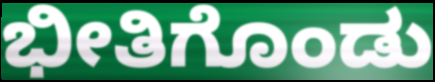
ಭೀತಿಗೊಂಡು